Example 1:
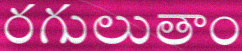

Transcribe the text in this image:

రగులుతాం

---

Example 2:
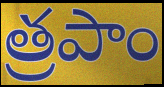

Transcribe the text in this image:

త్రపాం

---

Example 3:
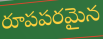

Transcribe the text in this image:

రూపపరమైన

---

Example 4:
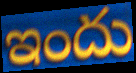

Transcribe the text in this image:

ఇందు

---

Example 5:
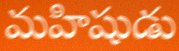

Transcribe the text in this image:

మహిషుడు